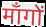
माँगों